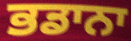
ਭਡਾਨਾ